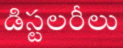
డిస్టలరీలు